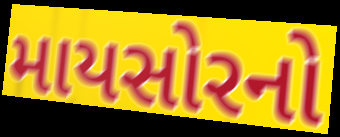
માયસોરનો